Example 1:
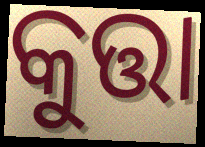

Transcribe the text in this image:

କୁତ୍ତା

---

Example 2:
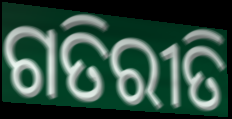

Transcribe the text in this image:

ଗତିରୀତି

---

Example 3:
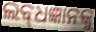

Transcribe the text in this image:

ଲବ୍‌ଧଜ୍ଞାନକୁ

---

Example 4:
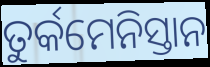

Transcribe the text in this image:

ତୁର୍କମେନିସ୍ତାନ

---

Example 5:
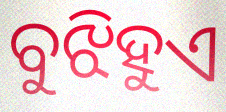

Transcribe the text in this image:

ବୁଝିହୁଏ